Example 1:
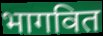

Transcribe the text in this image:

भागवित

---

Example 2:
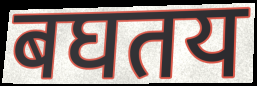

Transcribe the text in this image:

बघतय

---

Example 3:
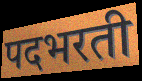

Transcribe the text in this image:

पदभरती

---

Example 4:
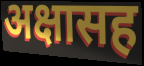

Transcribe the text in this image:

अक्षासह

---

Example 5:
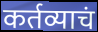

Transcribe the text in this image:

कर्तव्याचं